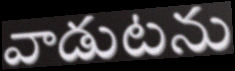
వాడుటను